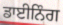
ਡਾਈਨਿੰਗ